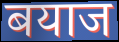
बयाज